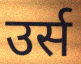
उर्स